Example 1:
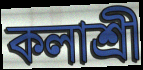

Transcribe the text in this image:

কলাশ্রী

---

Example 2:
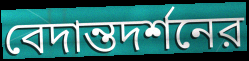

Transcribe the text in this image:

বেদান্তদর্শনের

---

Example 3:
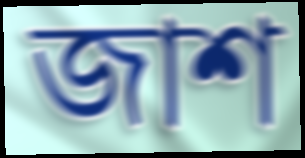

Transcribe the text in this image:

জাশ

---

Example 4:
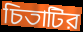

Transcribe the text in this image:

চিতাটির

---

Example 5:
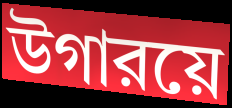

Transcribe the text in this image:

উগারয়ে